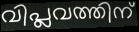
വിപ്ലവത്തിന്